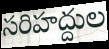
సరిహద్దుల